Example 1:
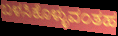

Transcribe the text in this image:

ಬಳಸಿಕೊಳ್ಳುವಂತಹ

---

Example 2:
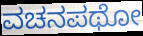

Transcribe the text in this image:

ವಚನಪಥೋ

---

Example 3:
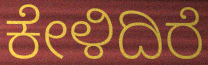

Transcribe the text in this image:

ಕೇಳಿದಿರೆ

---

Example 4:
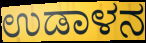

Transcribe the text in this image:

ಉಡಾಳನ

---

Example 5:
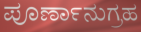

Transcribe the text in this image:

ಪೂರ್ಣಾನುಗ್ರಹ